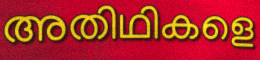
അതിഥികളെ